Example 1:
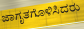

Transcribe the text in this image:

ಜಾಗೃತಗೊಳಿಸಿದರು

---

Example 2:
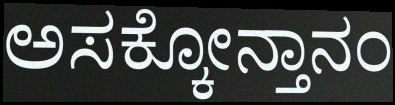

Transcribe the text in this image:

ಅಸಕ್ಕೋನ್ತಾನಂ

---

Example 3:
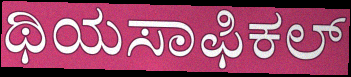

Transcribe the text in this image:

ಥಿಯಸಾಫಿಕಲ್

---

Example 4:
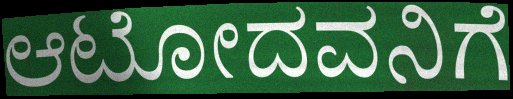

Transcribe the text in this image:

ಆಟೋದವನಿಗೆ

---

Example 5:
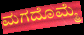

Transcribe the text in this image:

ಮಗದೊಮ್ಮೆ